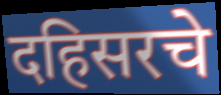
दहिसरचे